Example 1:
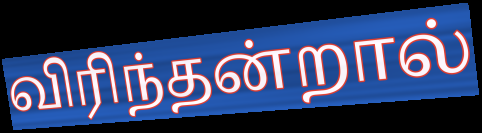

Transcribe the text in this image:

விரிந்தன்றால்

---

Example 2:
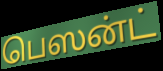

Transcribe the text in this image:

பெஸன்ட்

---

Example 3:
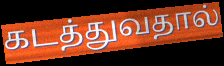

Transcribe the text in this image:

கடத்துவதால்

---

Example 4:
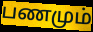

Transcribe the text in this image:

பணமும்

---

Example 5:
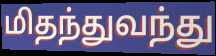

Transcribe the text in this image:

மிதந்துவந்து